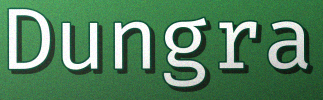
Dungra